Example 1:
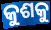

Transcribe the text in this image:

କୁଶକୁ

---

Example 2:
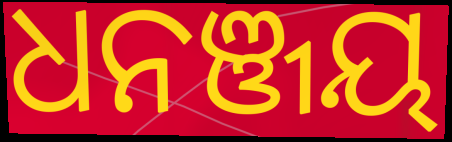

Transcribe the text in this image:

ଧନଞ୍ଜୟ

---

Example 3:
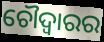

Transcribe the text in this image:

ଚୌଦ୍ୱାରର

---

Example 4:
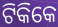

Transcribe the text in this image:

ଟିକିକେ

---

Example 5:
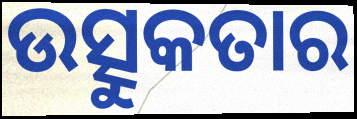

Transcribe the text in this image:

ଉତ୍ସୁକତାର